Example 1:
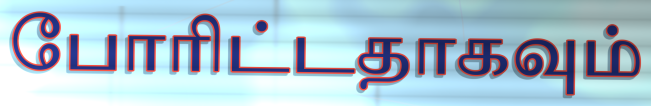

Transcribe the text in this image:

போரிட்டதாகவும்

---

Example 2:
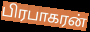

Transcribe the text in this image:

பிரபாகரன்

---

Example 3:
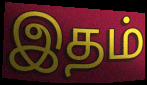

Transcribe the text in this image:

இதம்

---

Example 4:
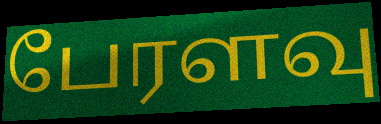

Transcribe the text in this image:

பேரளவு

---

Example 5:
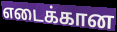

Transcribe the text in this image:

எடைக்கான